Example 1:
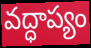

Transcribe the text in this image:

వద్ధాప్యం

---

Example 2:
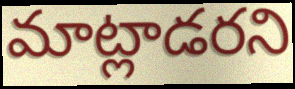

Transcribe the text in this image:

మాట్లాడరని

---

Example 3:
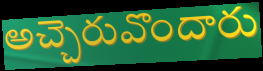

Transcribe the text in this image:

అచ్చెరువొందారు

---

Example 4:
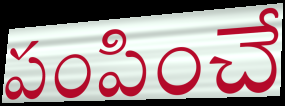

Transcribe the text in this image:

పంపించే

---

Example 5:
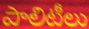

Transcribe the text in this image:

పాలిటీలు